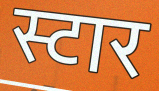
स्टार